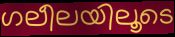
ഗലീലയിലൂടെ